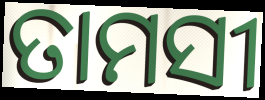
ତାମସୀ